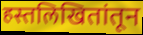
हस्तलिखितांतून